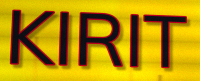
KIRIT